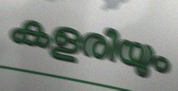
കളരിയും